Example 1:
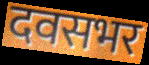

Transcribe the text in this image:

दवसभर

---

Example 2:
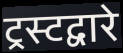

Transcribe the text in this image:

ट्रस्टद्वारे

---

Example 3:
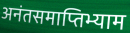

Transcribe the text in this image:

अनंतसमाप्तिभ्याम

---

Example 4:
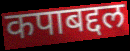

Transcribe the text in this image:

कपाबद्दल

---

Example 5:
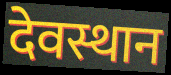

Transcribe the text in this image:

देवस्थान